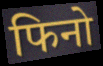
फिनो